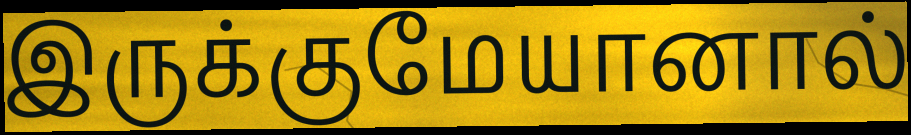
இருக்குமேயானால்